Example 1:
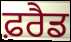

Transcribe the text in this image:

ਫ਼ਰੈਡ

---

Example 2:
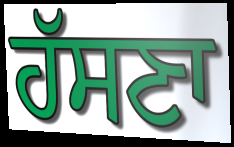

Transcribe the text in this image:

ਹੱਸਣਾ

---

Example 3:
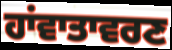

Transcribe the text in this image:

ਹਾਂਵਾਤਾਵਰਣ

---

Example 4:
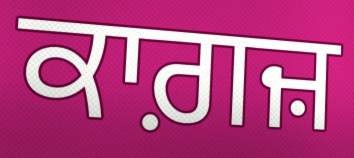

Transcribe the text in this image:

ਕਾਗ਼ਜ਼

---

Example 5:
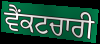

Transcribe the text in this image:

ਵੈਂਕਟਚਾਰੀ